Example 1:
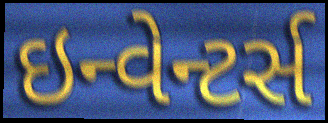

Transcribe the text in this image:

ઇન્વેન્ટર્સ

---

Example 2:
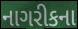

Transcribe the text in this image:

નાગરીકના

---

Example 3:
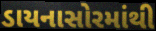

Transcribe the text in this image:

ડાયનાસોરમાંથી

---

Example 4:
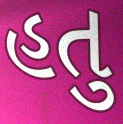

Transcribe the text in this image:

હતુ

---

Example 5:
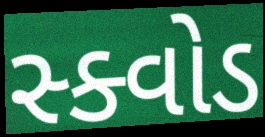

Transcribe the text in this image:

સ્ક્વોડ